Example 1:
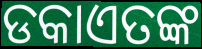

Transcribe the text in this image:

ଡକାଏତଙ୍କ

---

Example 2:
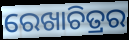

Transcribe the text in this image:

ରେଖାଚିତ୍ରର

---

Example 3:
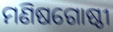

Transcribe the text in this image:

ମଣିଷଗୋଷ୍ଠୀ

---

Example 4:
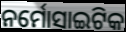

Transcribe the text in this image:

ନର୍ମୋସାଇଟିକ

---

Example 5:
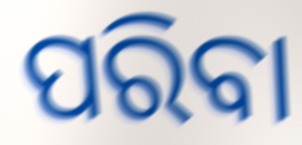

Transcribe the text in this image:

ପରିବା